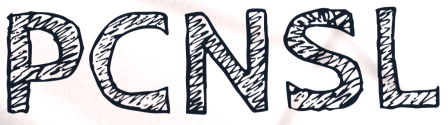
PCNSL